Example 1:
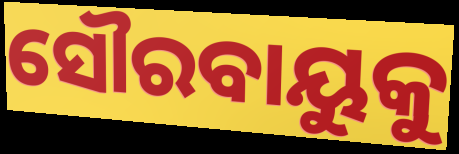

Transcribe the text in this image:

ସୌରବାୟୁକୁ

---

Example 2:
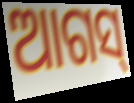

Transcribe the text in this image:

ଆଗସ୍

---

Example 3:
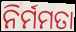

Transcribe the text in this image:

ନିର୍ମମତା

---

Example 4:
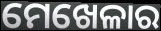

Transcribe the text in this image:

ମେଖେଳାର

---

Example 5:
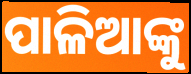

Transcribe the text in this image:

ପାଳିଆଙ୍କୁ